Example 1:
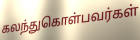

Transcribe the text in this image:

கலந்துகொள்பவர்கள்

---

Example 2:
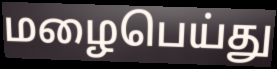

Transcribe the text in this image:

மழைபெய்து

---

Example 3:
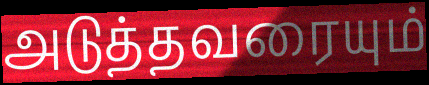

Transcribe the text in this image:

அடுத்தவரையும்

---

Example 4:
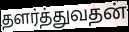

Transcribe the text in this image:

தளர்த்துவதன்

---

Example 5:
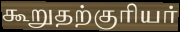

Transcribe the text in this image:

கூறுதற்குரியர்